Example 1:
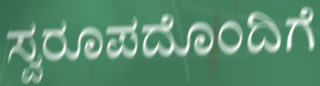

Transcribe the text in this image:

ಸ್ವರೂಪದೊಂದಿಗೆ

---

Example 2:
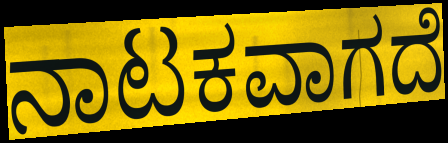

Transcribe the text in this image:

ನಾಟಕವಾಗದೆ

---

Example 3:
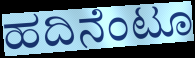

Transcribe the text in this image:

ಹದಿನೆಂಟೂ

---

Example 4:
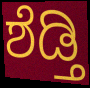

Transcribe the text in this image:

ಶೆಡ್ತಿ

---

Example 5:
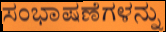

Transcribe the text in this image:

ಸಂಭಾಷಣೆಗಳನ್ನು